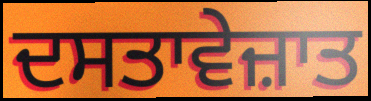
ਦਸਤਾਵੇਜ਼ਾਤ